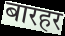
बारहर